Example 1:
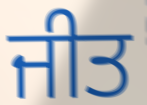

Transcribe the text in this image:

ਜੀਤ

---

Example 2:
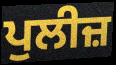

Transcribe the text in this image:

ਪੁਲੀਜ਼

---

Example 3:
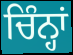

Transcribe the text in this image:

ਚਿੰਨ੍ਹਾਂ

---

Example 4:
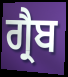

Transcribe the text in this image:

ਗ੍ਰੈਬ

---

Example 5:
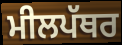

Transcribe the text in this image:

ਮੀਲਪੱਥਰ